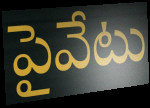
పైవేటు